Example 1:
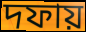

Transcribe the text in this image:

দফায়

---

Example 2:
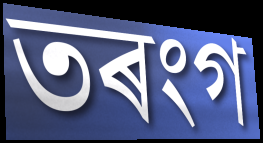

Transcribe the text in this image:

তৰংগ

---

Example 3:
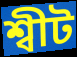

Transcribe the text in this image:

শ্বীট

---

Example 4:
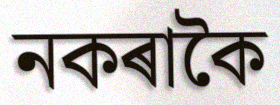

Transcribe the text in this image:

নকৰাকৈ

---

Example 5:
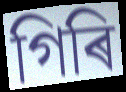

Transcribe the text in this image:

গিৰি